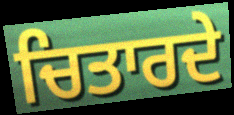
ਚਿਤਾਰਦੇ